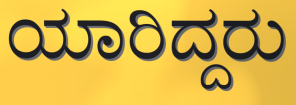
ಯಾರಿದ್ದರು